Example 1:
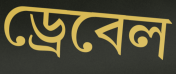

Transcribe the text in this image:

ড্রেবেল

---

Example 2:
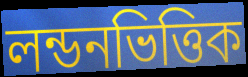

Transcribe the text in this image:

লন্ডনভিত্তিক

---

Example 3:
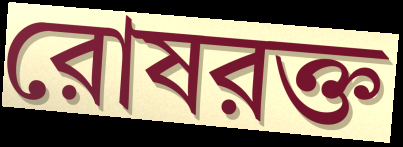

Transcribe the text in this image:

রোষরক্ত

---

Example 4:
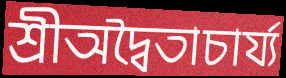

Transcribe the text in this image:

শ্রীঅদ্বৈতাচার্য্য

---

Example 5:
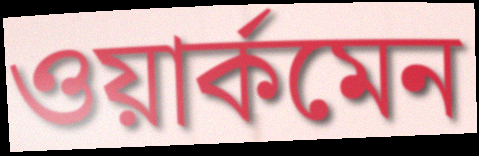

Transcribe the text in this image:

ওয়ার্কমেন